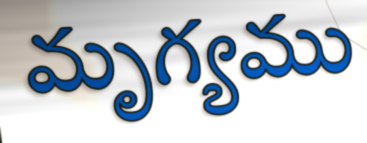
మృగ్యము